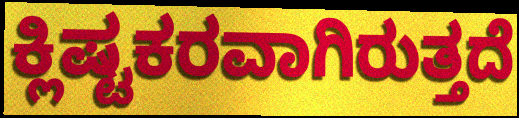
ಕ್ಲಿಷ್ಟಕರವಾಗಿರುತ್ತದೆ